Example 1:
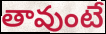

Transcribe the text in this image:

తావుంటే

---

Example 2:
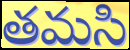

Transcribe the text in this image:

తమసి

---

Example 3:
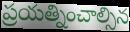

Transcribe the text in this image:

ప్రయత్నించాల్సిన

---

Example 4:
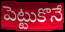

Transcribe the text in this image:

పెట్టుకొనే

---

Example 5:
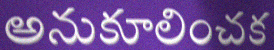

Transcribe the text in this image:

అనుకూలించక